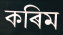
কৰিম